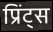
प्रिंट्स